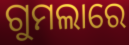
ଗୁମଲାରେ